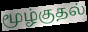
மூழ்குதல்